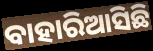
ବାହାରିଆସିଛି